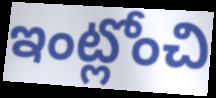
ఇంట్లోంచి